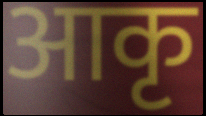
आकृ